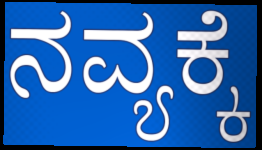
ನವ್ಯಕ್ಕೆ